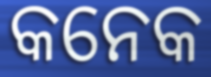
କନେକ